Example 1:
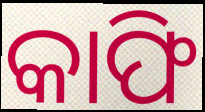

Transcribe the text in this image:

କାଫି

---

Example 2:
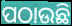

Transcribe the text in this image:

ପଠାଉଛି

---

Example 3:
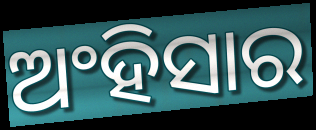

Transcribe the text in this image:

ଅଂହିସାର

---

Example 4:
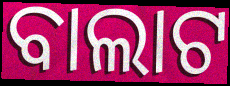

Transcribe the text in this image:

ବାଲାଟ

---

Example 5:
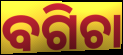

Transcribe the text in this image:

ବଗିଚା